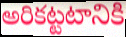
అరికట్టటానికి